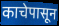
काचेपासून